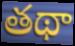
తథా